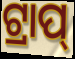
ଟ୍ରାପ୍